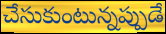
చేసుకుంటున్నప్పుడే